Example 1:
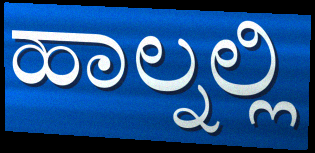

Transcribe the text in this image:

ಹಾಲ್ನಲ್ಲಿ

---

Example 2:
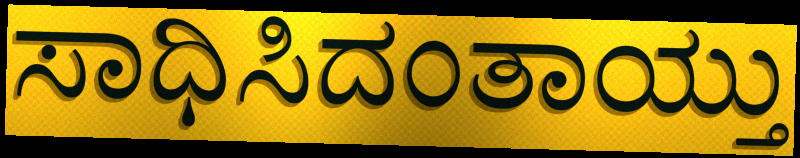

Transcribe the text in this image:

ಸಾಧಿಸಿದಂತಾಯ್ತು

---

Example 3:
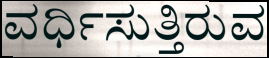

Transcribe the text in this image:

ವರ್ಧಿಸುತ್ತಿರುವ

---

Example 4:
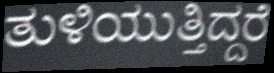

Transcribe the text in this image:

ತುಳಿಯುತ್ತಿದ್ದರೆ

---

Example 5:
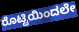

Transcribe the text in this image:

ರೊಟ್ಟಿಯಿಂದಲೇ